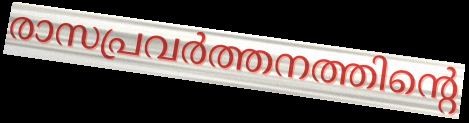
രാസപ്രവർത്തനത്തിന്റെ